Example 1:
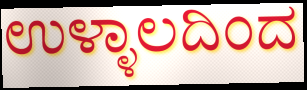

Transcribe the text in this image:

ಉಳ್ಳಾಲದಿಂದ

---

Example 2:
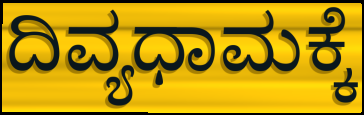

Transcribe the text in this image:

ದಿವ್ಯಧಾಮಕ್ಕೆ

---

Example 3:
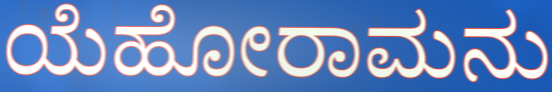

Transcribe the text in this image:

ಯೆಹೋರಾಮನು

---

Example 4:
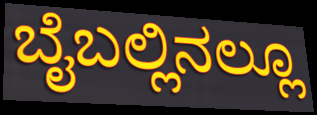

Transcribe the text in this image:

ಬೈಬಲ್ಲಿನಲ್ಲೂ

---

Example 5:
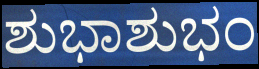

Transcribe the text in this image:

ಶುಭಾಶುಭಂ